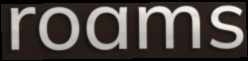
roams